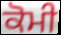
ਕੋਮੀ